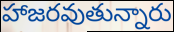
హాజరవుతున్నారు